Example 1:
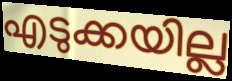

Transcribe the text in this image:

എടുക്കയില്ല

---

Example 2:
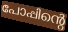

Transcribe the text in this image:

പോപ്പിന്റെ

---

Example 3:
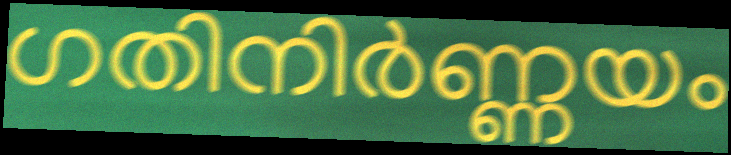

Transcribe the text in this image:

ഗതിനിർണ്ണയം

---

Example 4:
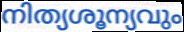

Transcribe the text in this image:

നിത്യശൂന്യവും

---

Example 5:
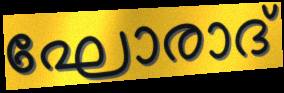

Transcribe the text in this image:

ഘോരാദ്